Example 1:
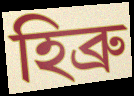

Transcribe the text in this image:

হিব্রু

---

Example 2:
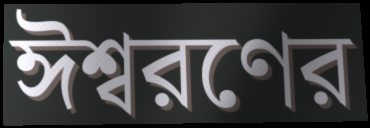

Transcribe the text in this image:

ঈশ্বরণের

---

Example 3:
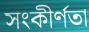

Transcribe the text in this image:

সংকীর্ণতা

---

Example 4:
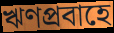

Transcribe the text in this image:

ঋণপ্রবাহে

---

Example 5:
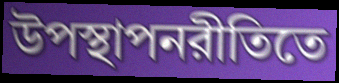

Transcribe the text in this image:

উপস্থাপনরীতিতে